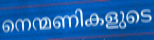
നെന്മണികളുടെ